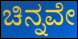
ಚಿನ್ನವೇ